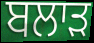
ਬਲਾੜ